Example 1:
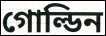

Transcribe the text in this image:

গোল্ডিন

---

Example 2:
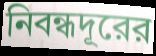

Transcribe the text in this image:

নিবন্ধদূরের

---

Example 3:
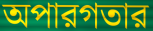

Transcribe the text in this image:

অপারগতার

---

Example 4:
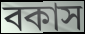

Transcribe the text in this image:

বকাস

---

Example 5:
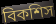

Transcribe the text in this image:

বিকশিস